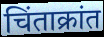
चिंताक्रांत